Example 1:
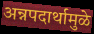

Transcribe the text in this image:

अन्नपदार्थामुळे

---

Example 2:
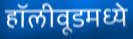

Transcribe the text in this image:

हॉलीवूडमध्ये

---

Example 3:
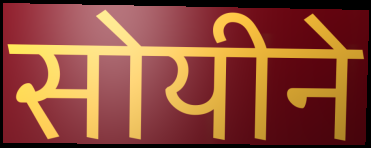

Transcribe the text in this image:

सोयीने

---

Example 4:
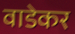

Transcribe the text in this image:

वाडेकर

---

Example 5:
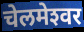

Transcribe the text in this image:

चेलमेश्‍वर